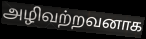
அழிவற்றவனாக